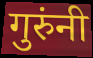
गुरुंनी